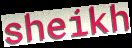
sheikh